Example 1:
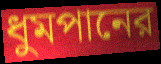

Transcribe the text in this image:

ধুমপানের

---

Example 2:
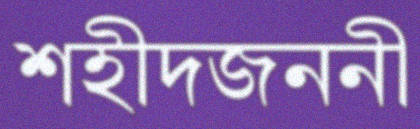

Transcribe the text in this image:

শহীদজননী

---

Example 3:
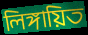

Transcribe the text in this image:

লিঙ্গায়িত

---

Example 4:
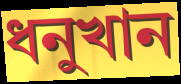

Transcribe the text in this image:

ধনুখান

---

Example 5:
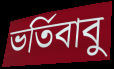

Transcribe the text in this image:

ভর্তিবাবু